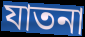
যাতনা